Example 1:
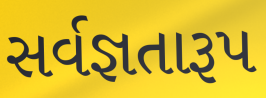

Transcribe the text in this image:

સર્વજ્ઞતારૂપ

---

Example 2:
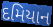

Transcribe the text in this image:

દમિયાન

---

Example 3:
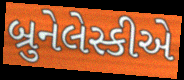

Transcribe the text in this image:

બ્રુનેલેસ્કીએ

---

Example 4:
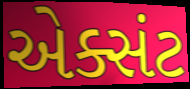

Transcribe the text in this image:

એક્સંટ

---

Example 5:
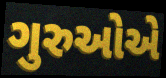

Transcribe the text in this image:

ગુરુઓએ